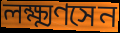
লক্ষ্মণসেন